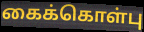
கைக்கொள்பு